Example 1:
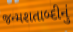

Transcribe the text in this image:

જન્મશતાબ્દીનું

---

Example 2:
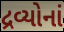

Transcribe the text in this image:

દ્રવ્યોનાં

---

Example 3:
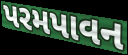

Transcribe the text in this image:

પરમપાવન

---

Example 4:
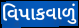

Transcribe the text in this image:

વિપાકવાળું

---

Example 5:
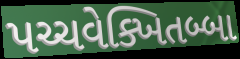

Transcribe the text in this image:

પચ્ચવેક્ખિતબ્બા